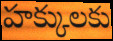
హక్కులకు